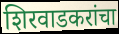
शिरवाडकरांचा